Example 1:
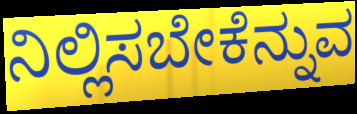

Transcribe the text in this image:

ನಿಲ್ಲಿಸಬೇಕೆನ್ನುವ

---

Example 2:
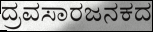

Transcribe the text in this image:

ದ್ರವಸಾರಜನಕದ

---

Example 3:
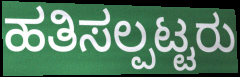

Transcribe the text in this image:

ಹತಿಸಲ್ಪಟ್ಟರು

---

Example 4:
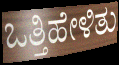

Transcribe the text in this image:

ಒತ್ತಿಹೇಳಿತು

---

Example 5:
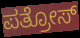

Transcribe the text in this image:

ಪತ್ರೋಸ್